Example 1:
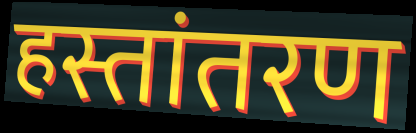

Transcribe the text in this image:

हस्तांतरण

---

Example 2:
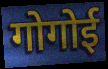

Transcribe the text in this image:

गोगोई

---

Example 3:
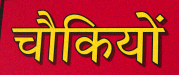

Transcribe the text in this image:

चौकियों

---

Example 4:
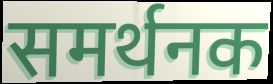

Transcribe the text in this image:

समर्थनक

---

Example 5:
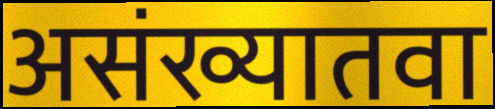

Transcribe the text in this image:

असंख्यातवा